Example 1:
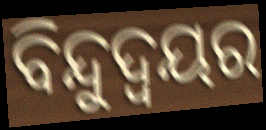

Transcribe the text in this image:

ବିନ୍ଦୁଦ୍ବୟର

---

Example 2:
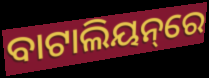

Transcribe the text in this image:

ବାଟାଲିୟନ୍‌ରେ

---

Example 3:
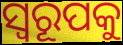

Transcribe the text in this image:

ସ୍ବରୂପକୁ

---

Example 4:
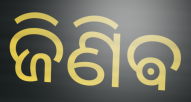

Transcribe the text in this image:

ଜିଣିଵ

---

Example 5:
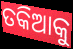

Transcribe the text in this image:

ତକିଆକୁ